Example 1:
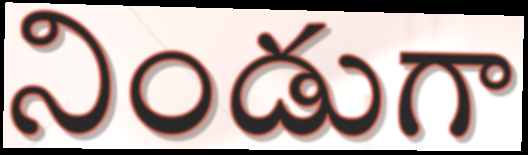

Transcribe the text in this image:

నిండుగా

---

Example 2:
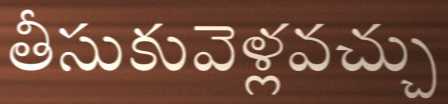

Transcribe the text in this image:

తీసుకువెళ్లవచ్చు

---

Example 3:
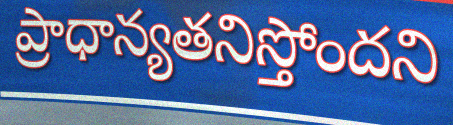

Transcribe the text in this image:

ప్రాధాన్యతనిస్తోందని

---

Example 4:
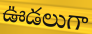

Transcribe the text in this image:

ఊడలుగా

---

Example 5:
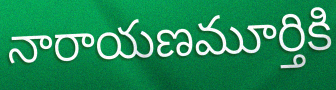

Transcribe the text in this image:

నారాయణమూర్తికి